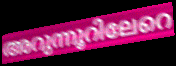
അറുന്നൂറിലേറെ